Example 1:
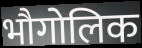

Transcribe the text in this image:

भौगोलिक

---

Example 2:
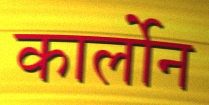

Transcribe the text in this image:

कार्लोन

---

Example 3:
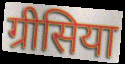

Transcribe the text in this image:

ग्रीसिया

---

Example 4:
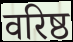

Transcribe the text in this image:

वरिष्ठ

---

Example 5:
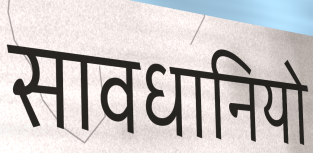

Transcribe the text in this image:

सावधानियो